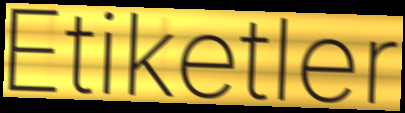
Etiketler